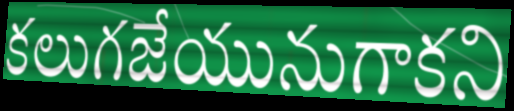
కలుగజేయునుగాకని